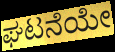
ಘಟನೆಯೇ